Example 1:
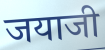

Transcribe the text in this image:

जयाजी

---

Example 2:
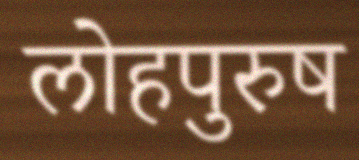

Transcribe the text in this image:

लोहपुरुष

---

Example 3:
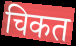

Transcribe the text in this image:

चिकत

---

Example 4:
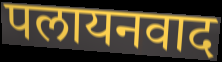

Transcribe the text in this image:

पलायनवाद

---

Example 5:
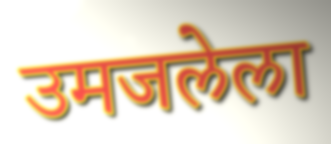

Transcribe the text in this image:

उमजलेला